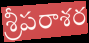
శ్రీపరాశర